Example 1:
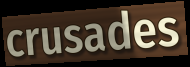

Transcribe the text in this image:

crusades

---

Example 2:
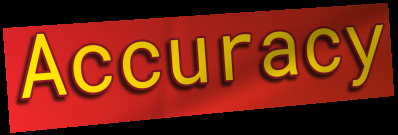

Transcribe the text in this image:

Accuracy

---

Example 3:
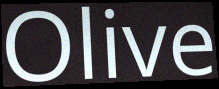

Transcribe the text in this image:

Olive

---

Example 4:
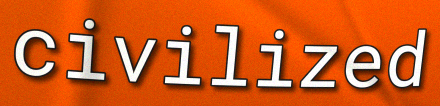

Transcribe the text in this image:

civilized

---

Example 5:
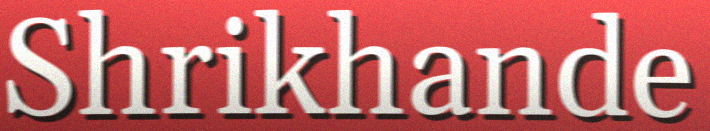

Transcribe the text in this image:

Shrikhande